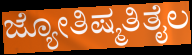
ಜ್ಯೋತಿಷ್ಮತಿತೈಲ